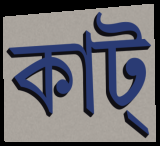
কাট্